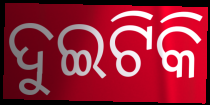
ଦୁଇଟିକି